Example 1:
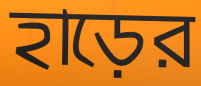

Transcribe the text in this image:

হাড়ের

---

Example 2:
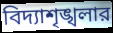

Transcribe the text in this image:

বিদ্যাশৃঙ্খলার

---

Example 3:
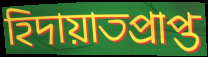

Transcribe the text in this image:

হিদায়াতপ্রাপ্ত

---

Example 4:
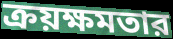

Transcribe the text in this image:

ক্রয়ক্ষমতার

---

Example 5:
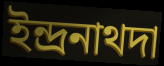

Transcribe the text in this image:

ইন্দ্রনাথদা